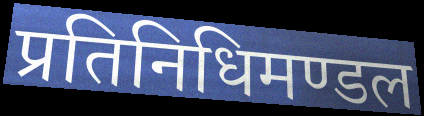
प्रतिनिधिमण्डल